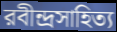
রবীন্দ্রসাহিত্য